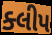
ક્લીપ